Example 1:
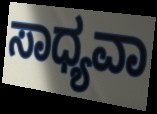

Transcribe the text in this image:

ಸಾಧ್ಯವಾ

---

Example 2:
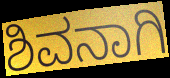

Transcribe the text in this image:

ಶಿವನಾಗಿ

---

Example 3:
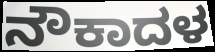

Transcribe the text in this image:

ನೌಕಾದಳ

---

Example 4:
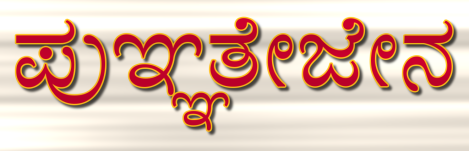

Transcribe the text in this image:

ಪುಞ್ಞತೇಜೇನ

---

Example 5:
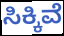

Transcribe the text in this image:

ಸಿಕ್ಕಿವೆ